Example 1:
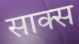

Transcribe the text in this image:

साक्स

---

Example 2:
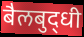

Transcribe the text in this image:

बैलबुद्धी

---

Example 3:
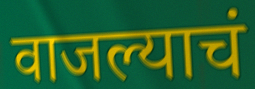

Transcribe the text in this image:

वाजल्याचं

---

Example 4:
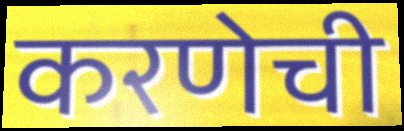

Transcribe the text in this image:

करणेची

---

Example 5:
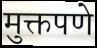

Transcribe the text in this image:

मुक्तपणे